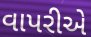
વાપરીએ